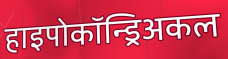
हाइपोकॉन्ड्रिअकल